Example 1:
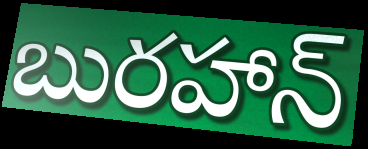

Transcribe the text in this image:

బురహాన్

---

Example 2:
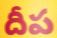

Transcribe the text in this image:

దీప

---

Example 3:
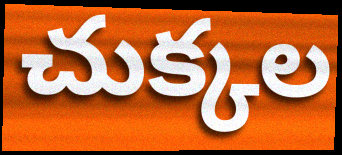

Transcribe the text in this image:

చుక్కల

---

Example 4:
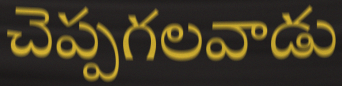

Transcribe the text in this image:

చెప్పగలవాడు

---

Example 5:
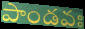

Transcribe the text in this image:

పాండవః